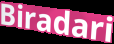
Biradari